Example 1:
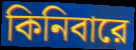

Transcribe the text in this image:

কিনিবারে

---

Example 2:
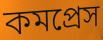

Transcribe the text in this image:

কমপ্রেস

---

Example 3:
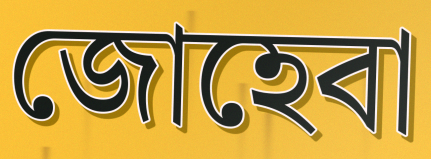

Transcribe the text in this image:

জোহেবা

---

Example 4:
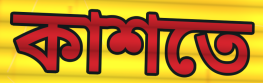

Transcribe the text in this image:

কাশতে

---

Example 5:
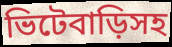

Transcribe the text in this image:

ভিটেবাড়িসহ